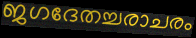
ജഗദേതച്ചരാചരം